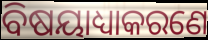
ବିଷୟାଧ୍ୟାକରଣେ